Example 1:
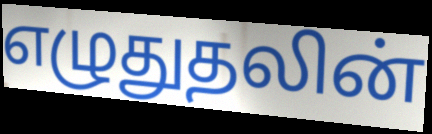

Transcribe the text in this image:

எழுதுதலின்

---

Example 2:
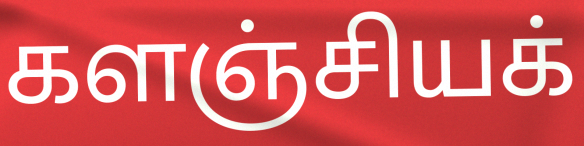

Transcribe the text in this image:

களஞ்சியக்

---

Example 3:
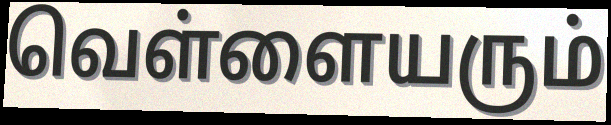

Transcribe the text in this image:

வெள்ளையரும்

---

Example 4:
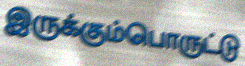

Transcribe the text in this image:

இருக்கும்பொருட்டு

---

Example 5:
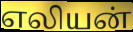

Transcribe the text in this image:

எலியன்